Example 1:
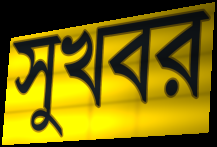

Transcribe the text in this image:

সুখবর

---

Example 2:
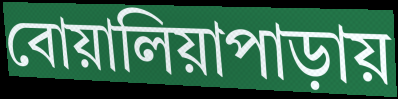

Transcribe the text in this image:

বোয়ালিয়াপাড়ায়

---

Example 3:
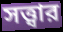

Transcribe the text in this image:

সত্ত্বার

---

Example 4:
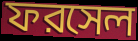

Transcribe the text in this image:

ফরসেল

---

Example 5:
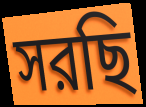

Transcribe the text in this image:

সরছি